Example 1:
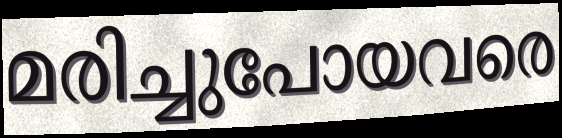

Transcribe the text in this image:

മരിച്ചുപോയവരെ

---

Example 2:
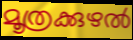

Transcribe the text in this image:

മൂത്രക്കുഴൽ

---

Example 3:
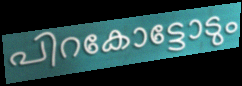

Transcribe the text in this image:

പിറകോട്ടോടും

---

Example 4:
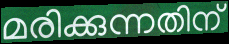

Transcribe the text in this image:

മരിക്കുന്നതിന്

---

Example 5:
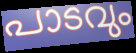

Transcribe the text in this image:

പാടവും